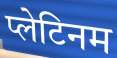
प्लेटिनम